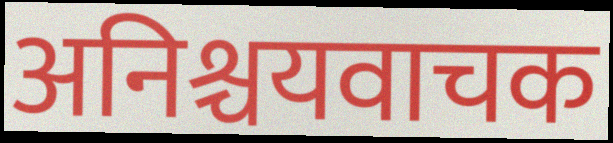
अनिश्चयवाचक